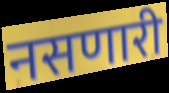
नसणारी